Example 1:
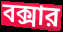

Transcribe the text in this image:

বক্সার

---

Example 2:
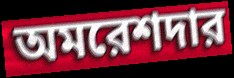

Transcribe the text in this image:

অমরেশদার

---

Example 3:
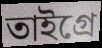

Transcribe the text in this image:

তাইগ্রে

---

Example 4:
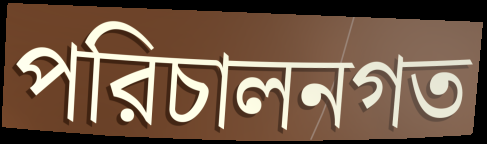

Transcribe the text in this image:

পরিচালনগত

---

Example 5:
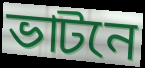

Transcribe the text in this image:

ভাটনে